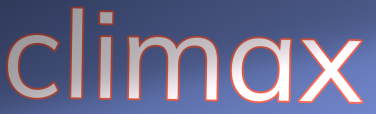
climax